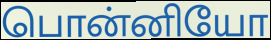
பொன்னியோ